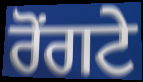
ਰੋੰਗਟੇ